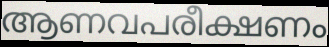
ആണവപരീക്ഷണം